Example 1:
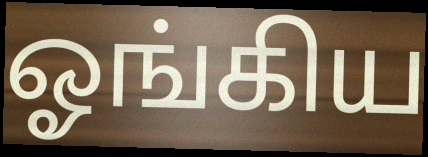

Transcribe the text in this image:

ஓங்கிய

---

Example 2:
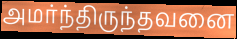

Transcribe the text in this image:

அமர்ந்திருந்தவனை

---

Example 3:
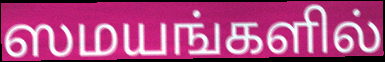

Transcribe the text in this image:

ஸமயங்களில்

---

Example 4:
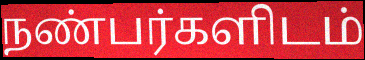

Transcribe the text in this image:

நண்பர்களிடம்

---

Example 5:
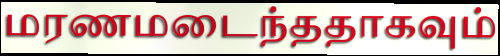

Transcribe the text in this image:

மரணமடைந்ததாகவும்